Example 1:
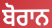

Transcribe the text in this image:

ਬੋਰਾਨ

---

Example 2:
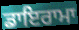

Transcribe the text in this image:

ਡਾਇਰਾਮਾ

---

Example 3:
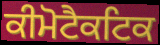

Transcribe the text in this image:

ਕੀਮੋਟੈਕਟਿਕ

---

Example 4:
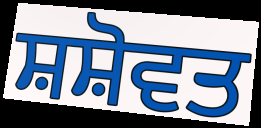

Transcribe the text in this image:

ਸ਼ਸ਼ੋਵਤ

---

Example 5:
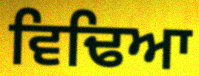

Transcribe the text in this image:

ਵਿਢਿਆ